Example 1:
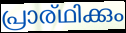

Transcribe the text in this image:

പ്രാര്ഥിക്കും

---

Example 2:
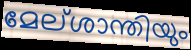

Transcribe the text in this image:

മേല്ശാന്തിയും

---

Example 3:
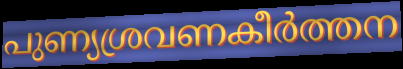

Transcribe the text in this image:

പുണ്യശ്രവണകീർത്തന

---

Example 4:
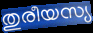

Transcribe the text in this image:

തുരീയസ്യ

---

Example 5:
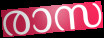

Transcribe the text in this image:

രാസ